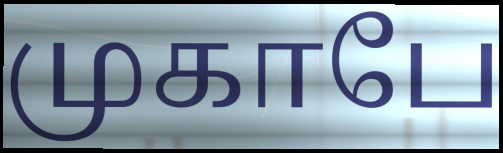
முகாபே